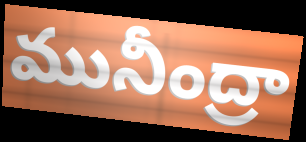
మునీంద్రా